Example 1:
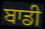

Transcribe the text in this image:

ਬਾਡੀ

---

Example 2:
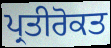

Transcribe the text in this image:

ਪ੍ਰਤੀਰੋਕਤ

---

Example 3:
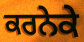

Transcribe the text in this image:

ਕਰਨੇਕੇ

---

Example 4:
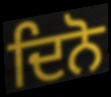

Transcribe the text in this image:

ਦਿਨੋ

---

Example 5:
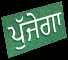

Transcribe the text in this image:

ਪੁੱਜੇਗਾ